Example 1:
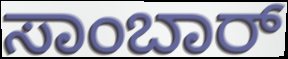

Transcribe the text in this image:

ಸಾಂಬಾರ್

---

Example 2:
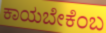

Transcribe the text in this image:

ಕಾಯಬೇಕೆಂಬ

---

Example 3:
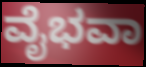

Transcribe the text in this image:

ವೈಭವಾ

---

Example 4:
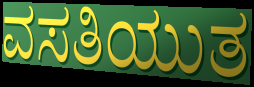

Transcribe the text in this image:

ವಸತಿಯುತ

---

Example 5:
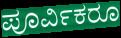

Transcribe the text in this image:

ಪೂರ್ವಿಕರೂ